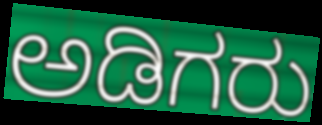
ಅಡಿಗರು